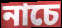
নাচে